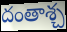
దంతాశ్చ